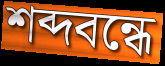
শব্দবন্ধে